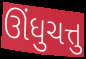
ઊંધુચત્તુ